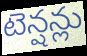
టెన్షన్లు